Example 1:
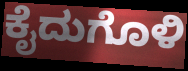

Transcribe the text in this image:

ಕೈದುಗೊಳಿ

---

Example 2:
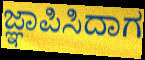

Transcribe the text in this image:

ಜ್ಞಾಪಿಸಿದಾಗ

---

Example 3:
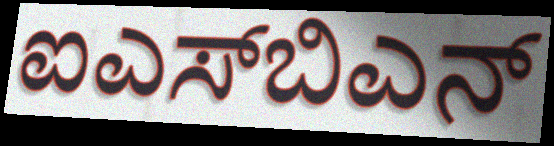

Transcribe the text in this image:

ಐಎಸ್‌ಬಿಎನ್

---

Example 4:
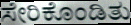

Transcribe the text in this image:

ಸೇರಿಕೊಂಡಿತು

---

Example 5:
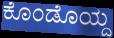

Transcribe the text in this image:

ಕೊಂಡೊಯ್ದ